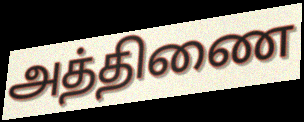
அத்திணை